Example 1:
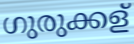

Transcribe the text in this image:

ഗുരുക്കള്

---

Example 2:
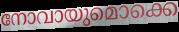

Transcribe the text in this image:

നോവായുമൊക്കെ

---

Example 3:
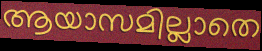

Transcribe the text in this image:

ആയാസമില്ലാതെ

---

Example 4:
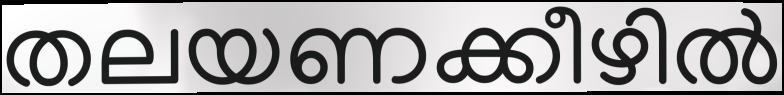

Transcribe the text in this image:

തലയണക്കീഴിൽ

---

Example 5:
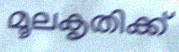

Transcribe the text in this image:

മൂലകൃതിക്ക്